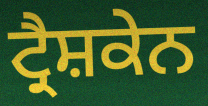
ਟ੍ਰੈਸ਼ਕੇਨ